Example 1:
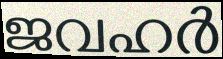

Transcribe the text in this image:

ജവഹർ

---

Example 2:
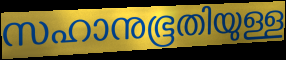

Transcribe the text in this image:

സഹാനുഭൂതിയുള്ള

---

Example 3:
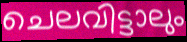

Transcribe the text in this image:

ചെലവിട്ടാലും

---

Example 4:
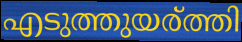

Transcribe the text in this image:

എടുത്തുയര്ത്തി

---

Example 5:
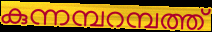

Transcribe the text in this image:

കുന്നമ്പറമ്പത്ത്